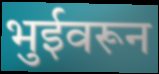
भुईवरून